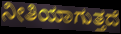
ನೀತಿಯಾಗುತ್ತದೆ